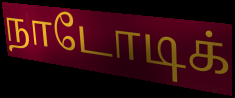
நாடோடிக்